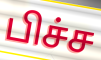
பிச்ச